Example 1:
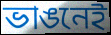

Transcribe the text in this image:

ভাঙনেই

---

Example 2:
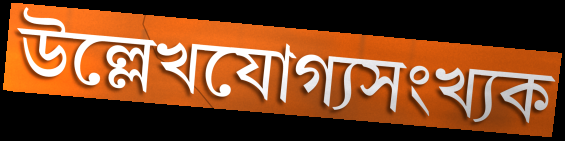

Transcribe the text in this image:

উল্লেখযোগ্যসংখ্যক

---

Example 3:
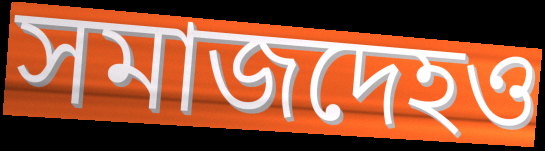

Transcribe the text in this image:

সমাজদেহও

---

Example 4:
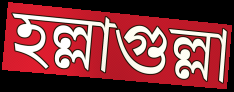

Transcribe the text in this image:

হল্লাগুল্লা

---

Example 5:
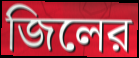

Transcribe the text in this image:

জিলের